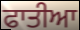
ਫਾਤੀਆ